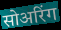
सोअरिंग